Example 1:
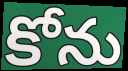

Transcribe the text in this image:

కోను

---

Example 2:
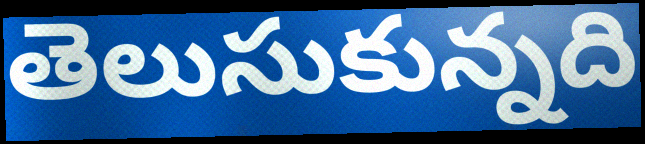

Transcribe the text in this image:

తెలుసుకున్నది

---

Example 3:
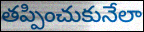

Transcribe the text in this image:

తప్పించుకునేలా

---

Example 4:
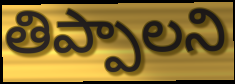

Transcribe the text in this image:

తిప్పాలని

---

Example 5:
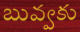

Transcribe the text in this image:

బువ్వకు